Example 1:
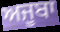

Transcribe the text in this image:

ਅਜੂਬਾ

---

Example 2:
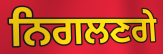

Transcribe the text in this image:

ਨਿਗਲਣਗੇ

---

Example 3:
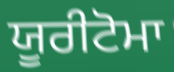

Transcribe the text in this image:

ਯੂਰੀਟੋਮਾ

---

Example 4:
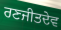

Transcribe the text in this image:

ਰਣਜੀਤਦੇਵ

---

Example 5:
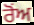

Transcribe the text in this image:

ਰੋਂਅ